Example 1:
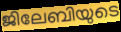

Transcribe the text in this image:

ജിലേബിയുടെ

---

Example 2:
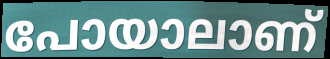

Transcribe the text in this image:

പോയാലാണ്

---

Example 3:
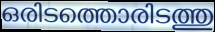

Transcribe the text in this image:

ഒരിടത്തൊരിടത്തു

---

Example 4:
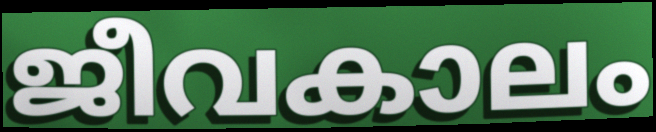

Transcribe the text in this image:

ജീവകാലം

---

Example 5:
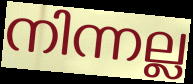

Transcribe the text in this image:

നിന്നല്ല